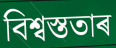
বিশ্বস্ততাৰ